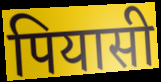
पियासी